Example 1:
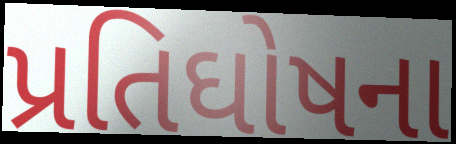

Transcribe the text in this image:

પ્રતિઘોષના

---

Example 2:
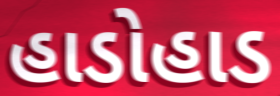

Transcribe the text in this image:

હાડોહાડ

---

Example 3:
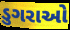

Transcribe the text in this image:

ડુગરાઓ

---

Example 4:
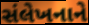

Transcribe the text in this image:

સંલેખનાને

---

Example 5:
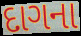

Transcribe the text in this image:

દાગના